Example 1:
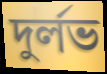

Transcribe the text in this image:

দুৰ্লভ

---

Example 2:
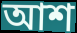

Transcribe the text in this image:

আশ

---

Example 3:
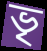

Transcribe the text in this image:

ভৃ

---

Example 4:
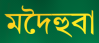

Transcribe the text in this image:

মদৈহুবা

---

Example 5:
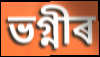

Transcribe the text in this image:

ভগ্নীৰ